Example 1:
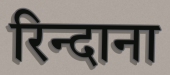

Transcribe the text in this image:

रिन्दाना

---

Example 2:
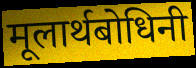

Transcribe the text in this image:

मूलार्थबोधिनी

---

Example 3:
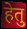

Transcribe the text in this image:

हेतु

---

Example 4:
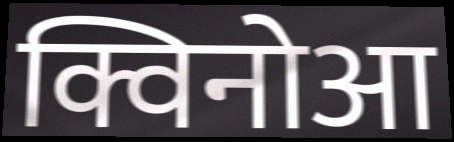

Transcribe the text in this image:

क्विनोआ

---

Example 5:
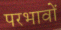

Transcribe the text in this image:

परभावों